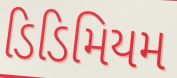
ડિડિમિયમ